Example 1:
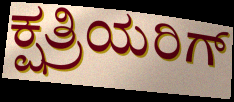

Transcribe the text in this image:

ಕ್ಷತ್ರಿಯರಿಗ್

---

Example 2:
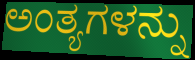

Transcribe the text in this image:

ಅಂತ್ಯಗಳನ್ನು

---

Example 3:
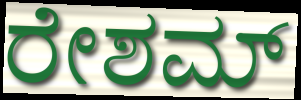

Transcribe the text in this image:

ರೇಶಮ್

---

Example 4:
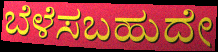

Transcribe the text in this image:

ಬೆಳೆಸಬಹುದೇ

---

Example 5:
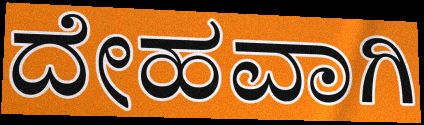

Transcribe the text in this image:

ದೇಹವಾಗಿ